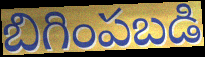
బిగింపబడి